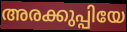
അരക്കുപ്പിയേ